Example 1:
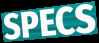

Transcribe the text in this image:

SPECS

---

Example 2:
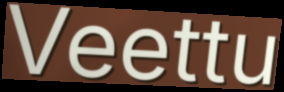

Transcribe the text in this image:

Veettu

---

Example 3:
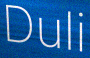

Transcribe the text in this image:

Duli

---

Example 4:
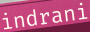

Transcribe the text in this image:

indrani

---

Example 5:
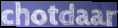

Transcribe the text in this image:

chotdaar